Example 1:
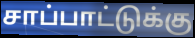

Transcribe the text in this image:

சாப்பாட்டுக்கு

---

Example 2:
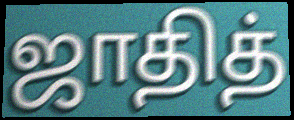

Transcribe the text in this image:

ஜாதித்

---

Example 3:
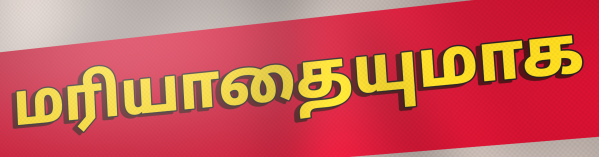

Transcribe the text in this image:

மரியாதையுமாக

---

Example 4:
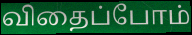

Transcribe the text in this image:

விதைப்போம்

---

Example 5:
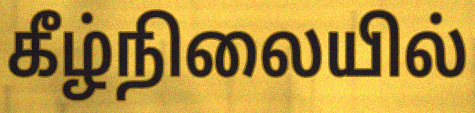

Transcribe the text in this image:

கீழ்நிலையில்